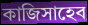
কাজিসাহেব